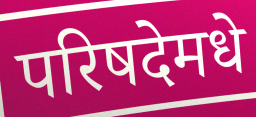
परिषदेमधे